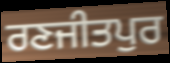
ਰਣਜੀਤਪੁਰ